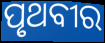
ପୃଥବୀର